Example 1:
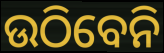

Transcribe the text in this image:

ଉଠିବେନି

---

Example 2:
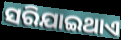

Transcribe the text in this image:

ସରିଯାଇଥାଏ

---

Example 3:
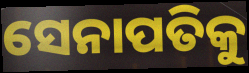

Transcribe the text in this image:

ସେନାପତିକୁ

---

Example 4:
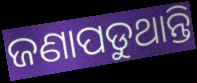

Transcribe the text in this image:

ଜଣାପଡୁଥାନ୍ତି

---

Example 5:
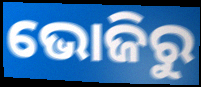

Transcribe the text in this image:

ଭୋଜିରୁ